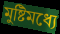
মুষ্টিমধ্যে